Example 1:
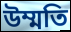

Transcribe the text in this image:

উম্মতি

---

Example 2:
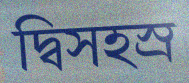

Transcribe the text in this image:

দ্বিসহস্র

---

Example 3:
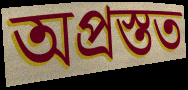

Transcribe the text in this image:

অপ্রস্তত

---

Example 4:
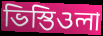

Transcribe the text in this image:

ভিস্তিওলা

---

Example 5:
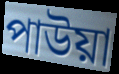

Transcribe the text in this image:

পাউয়া